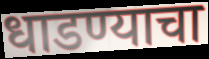
धाडण्याचा